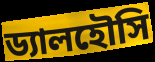
ড্যালহৌসি